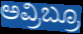
ಅವ್ರಿಬ್ರೂ